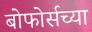
बोफोर्सच्या